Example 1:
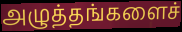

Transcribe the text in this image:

அழுத்தங்களைச்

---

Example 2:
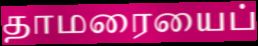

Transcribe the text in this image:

தாமரையைப்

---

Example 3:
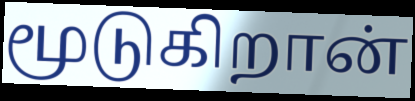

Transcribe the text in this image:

மூடுகிறான்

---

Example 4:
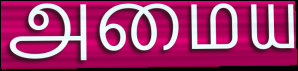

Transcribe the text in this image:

அமைய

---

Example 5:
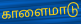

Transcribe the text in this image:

காளைமாடு